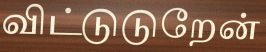
விட்டுடுறேன்